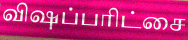
விஷப்பரிட்சை